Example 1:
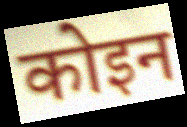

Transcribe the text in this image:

कोइन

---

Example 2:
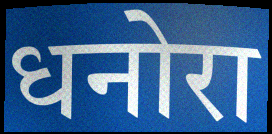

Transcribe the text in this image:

धनोरा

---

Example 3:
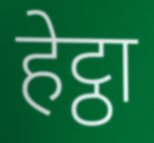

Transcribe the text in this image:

हेट्ठा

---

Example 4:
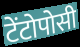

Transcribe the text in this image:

टेंटोपोसी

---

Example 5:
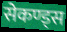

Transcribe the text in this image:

सेकण्ड्स